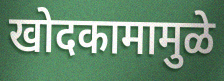
खोदकामामुळे